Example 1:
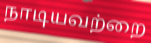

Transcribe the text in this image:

நாடியவற்றை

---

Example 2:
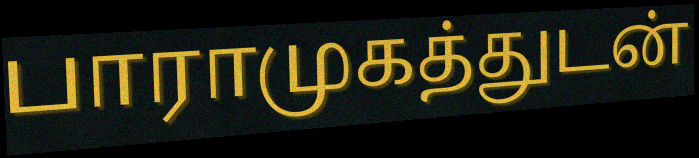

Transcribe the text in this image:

பாராமுகத்துடன்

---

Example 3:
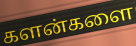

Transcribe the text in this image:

களன்களை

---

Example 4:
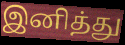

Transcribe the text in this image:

இனித்து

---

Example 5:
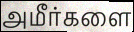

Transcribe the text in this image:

அமீர்களை